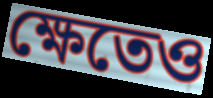
ক্ষেতেও